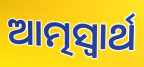
ଆତ୍ମସ୍ଵାର୍ଥ